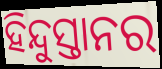
ହିନ୍ଦୁସ୍ତାନର